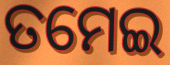
ତମେଇ